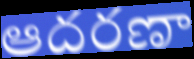
ఆదరణా